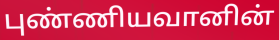
புண்ணியவானின்